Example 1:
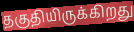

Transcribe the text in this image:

தகுதியிருக்கிறது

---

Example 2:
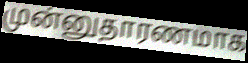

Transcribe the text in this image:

முன்னுதாரணமாக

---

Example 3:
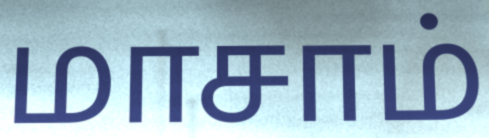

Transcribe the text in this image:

மாசாம்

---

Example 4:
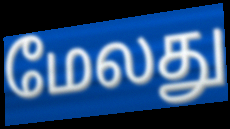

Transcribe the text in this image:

மேலது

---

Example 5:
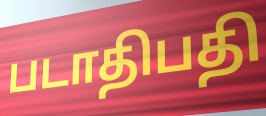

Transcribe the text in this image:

படாதிபதி